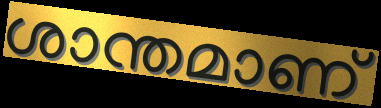
ശാന്തമാണ്